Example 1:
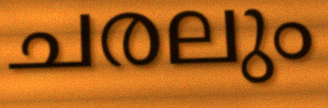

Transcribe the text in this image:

ചരലും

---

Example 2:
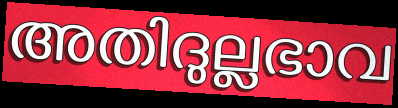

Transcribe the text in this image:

അതിദുല്ലഭാവ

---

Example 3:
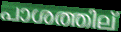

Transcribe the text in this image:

പാശത്തില്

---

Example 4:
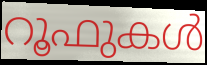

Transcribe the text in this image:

റൂഫുകൾ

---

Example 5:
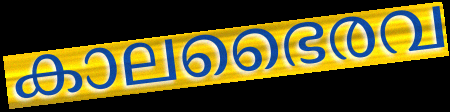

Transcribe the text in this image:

കാലഭൈരവ